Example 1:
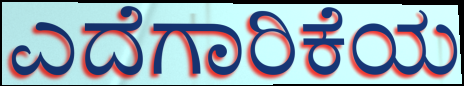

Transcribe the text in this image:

ಎದೆಗಾರಿಕೆಯ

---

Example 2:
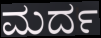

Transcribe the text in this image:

ಮರ್ದ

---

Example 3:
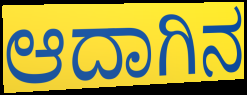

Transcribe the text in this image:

ಆದಾಗಿನ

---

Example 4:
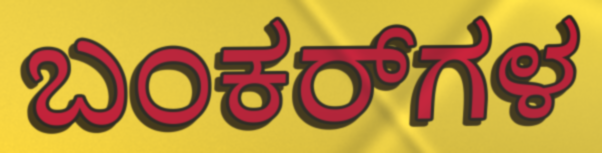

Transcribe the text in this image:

ಬಂಕರ್‌ಗಳ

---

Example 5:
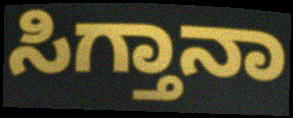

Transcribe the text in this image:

ಸಿಗ್ತಾನಾ